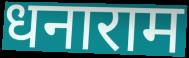
धनाराम